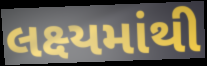
લક્ષ્યમાંથી